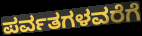
ಪರ್ವತಗಳವರೆಗೆ